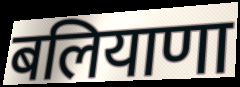
बलियाणा